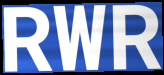
RWR